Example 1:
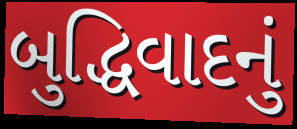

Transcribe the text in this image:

બુદ્ધિવાદનું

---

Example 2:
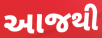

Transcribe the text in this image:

આજથી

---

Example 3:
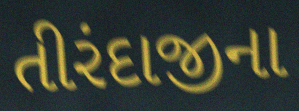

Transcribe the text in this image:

તીરંદાજીના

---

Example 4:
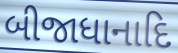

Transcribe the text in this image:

બીજાધાનાદિ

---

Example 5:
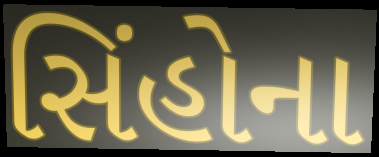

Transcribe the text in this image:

સિંહોના